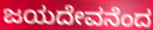
ಜಯದೇವನೆಂದ